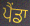
ਪੈਂਡਾ